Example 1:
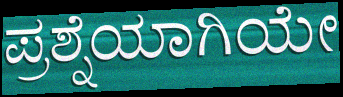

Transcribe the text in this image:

ಪ್ರಶ್ನೆಯಾಗಿಯೇ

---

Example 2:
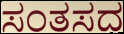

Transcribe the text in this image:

ಸಂತಸದ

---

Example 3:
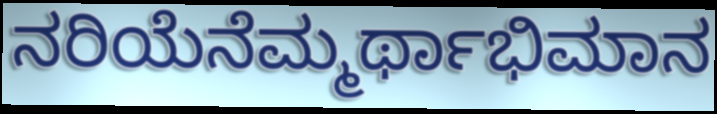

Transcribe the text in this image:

ನರಿಯೆನೆಮ್ಮರ್ಥಾಭಿಮಾನ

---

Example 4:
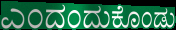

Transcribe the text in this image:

ಎಂದಂದುಕೊಂಡು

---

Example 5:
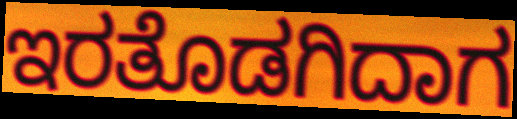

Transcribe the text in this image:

ಇರತೊಡಗಿದಾಗ